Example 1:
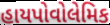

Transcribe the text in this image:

હાયપોવોલેમિક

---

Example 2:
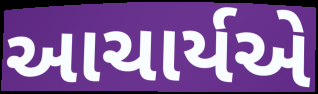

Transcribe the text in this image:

આચાર્યએ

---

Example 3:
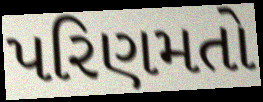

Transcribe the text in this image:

પરિણમતો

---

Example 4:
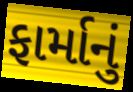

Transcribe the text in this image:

ફાર્માનું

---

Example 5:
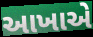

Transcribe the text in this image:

આખાએ